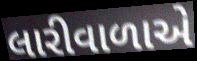
લારીવાળાએ